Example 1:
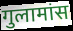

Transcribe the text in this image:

गुलामांस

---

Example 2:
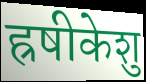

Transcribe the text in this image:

ह्रषीकेशु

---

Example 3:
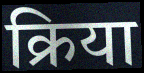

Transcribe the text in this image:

क्रिया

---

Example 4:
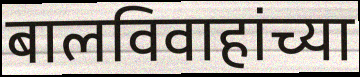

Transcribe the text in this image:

बालविवाहांच्या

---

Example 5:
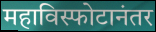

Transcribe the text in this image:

महाविस्फोटानंतर